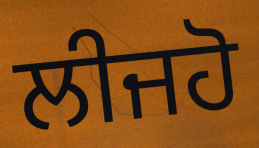
ਲੀਜਹੋ